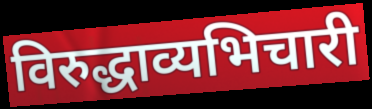
विरुद्धाव्यभिचारी